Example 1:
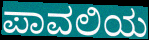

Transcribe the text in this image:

ಪಾವಲಿಯ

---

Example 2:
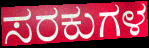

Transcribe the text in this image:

ಸರಕುಗಳ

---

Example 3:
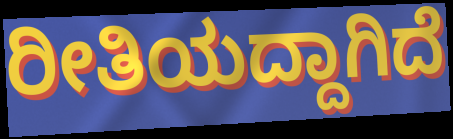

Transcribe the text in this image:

ರೀತಿಯದ್ದಾಗಿದೆ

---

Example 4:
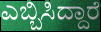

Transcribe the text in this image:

ಎಬ್ಬಿಸಿದ್ದಾರೆ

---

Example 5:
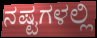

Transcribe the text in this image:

ನಷ್ಟಗಳಲ್ಲಿ